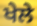
ਖੇਲੇ